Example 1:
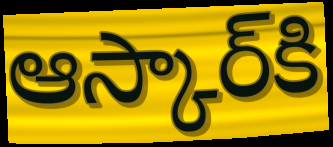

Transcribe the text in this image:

ఆస్కార్‌కి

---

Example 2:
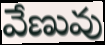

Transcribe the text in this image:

వేణువు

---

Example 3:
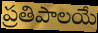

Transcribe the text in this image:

ప్రతిపాలయే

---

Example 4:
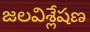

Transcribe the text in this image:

జలవిశ్లేషణ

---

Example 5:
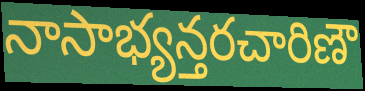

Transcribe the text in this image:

నాసాభ్యన్తరచారిణౌ